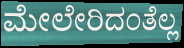
ಮೇಲೇರಿದಂತೆಲ್ಲ